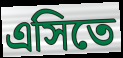
এসিতে